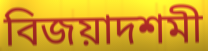
বিজয়াদশমী